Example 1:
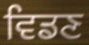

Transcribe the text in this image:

ਵਿਡਣ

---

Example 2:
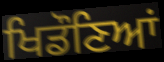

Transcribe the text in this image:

ਖਿਡੌਣਿਆਂ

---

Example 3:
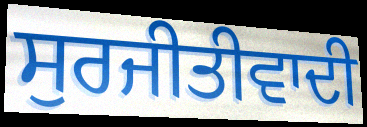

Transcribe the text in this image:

ਸੁਰਜੀਤੀਵਾਦੀ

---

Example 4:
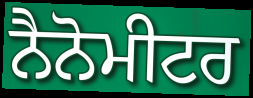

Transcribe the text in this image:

ਨੈਨੋਮੀਟਰ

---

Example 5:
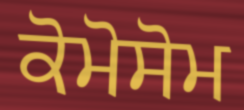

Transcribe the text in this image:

ਕੋਮੋਸੋਮ